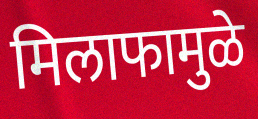
मिलाफामुळे